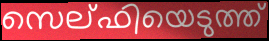
സെല്ഫിയെടുത്ത്